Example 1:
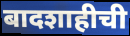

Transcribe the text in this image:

बादशाहीची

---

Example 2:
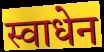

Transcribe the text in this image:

स्वाधेन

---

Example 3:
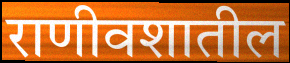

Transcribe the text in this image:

राणीवशातील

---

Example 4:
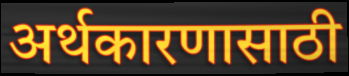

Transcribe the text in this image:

अर्थकारणासाठी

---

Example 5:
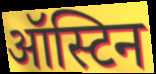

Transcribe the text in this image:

ऑस्टिन